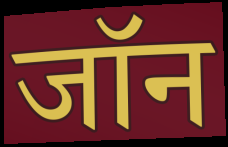
जॉन